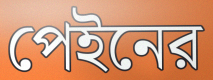
পেইনের